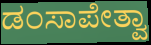
ಡಂಸಾಪೇತ್ವಾ